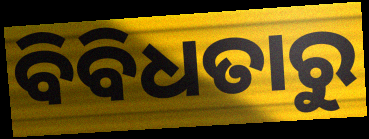
ବିବିଧତାରୁ